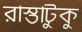
রাস্তাটুকু